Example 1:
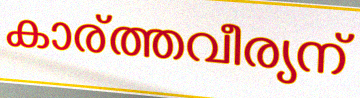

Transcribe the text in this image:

കാര്ത്തവീര്യന്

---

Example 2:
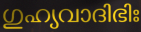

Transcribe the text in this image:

ഗുഹ്യവാദിഭിഃ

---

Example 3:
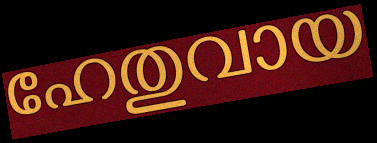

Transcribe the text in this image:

ഹേതുവായ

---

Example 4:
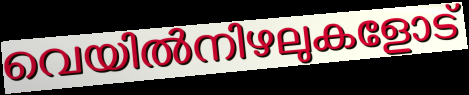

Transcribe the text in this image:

വെയിൽനിഴലുകളോട്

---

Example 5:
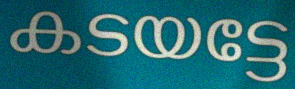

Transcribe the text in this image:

കടയട്ടേ